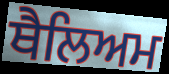
ਥੈਲਿਅਮ